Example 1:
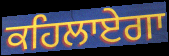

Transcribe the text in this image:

ਕਹਿਲਾਏਗਾ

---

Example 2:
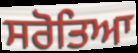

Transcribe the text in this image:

ਸਰੋਤਿਆ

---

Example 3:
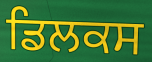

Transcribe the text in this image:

ਡਿਲਕਸ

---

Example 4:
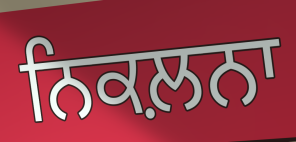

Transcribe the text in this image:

ਨਿਕਲ਼ਨਾ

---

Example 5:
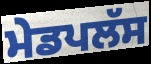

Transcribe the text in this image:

ਮੇਡਪਲੱਸ